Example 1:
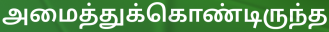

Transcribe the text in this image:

அமைத்துக்கொண்டிருந்த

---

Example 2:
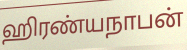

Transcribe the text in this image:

ஹிரண்யநாபன்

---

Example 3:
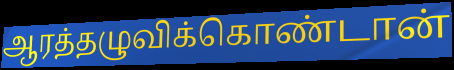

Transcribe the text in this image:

ஆரத்தழுவிக்கொண்டான்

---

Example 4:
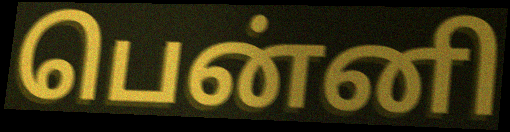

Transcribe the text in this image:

பென்னி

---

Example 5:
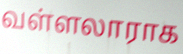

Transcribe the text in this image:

வள்ளலாராக